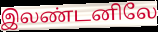
இலண்டனிலே